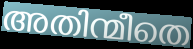
അതിന്മീതെ